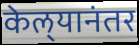
केल्यानंतर